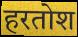
हरतोश